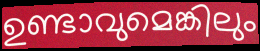
ഉണ്ടാവുമെങ്കിലും